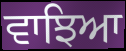
ਵਾਝਿਆ